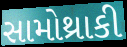
સામોથ્રાકી